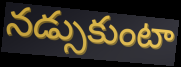
నడ్సుకుంటా